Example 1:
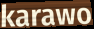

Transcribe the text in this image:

karawo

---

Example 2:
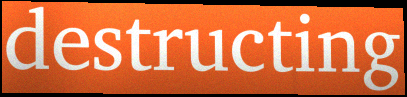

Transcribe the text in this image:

destructing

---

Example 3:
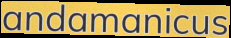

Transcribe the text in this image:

andamanicus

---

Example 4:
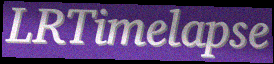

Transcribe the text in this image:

LRTimelapse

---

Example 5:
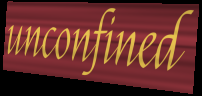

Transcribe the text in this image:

unconfined